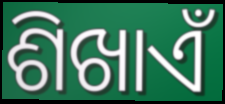
ଶିଖାଏଁ